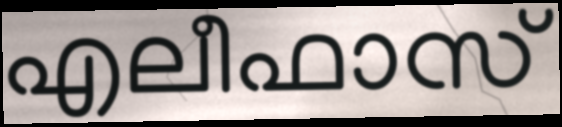
എലീഫാസ്